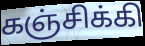
கஞ்சிக்கி